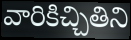
వారికిచ్చితిని